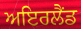
ਅਇਰਲੈਂਡ